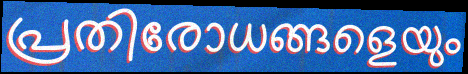
പ്രതിരോധങ്ങളെയും